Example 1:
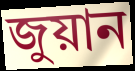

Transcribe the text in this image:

জুয়ান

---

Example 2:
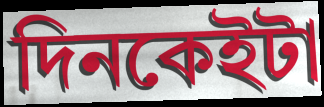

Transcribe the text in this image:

দিনকেইটা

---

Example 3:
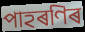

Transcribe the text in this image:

পাহৰণিৰ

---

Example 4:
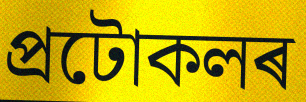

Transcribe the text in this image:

প্ৰটোকলৰ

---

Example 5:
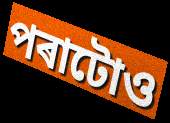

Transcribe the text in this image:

পৰাটোও